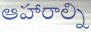
ఆహారాల్ని